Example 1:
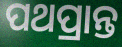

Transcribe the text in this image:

ପଥପ୍ରାନ୍ତ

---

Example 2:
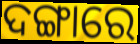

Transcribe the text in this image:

ଦଙ୍ଗାରେ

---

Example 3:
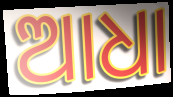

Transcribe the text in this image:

ଆଧା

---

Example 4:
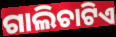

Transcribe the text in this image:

ଗାଲିଚାଟିଏ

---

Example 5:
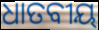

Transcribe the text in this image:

ଧାତବୀୟ